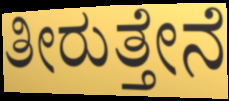
ತೀರುತ್ತೇನೆ